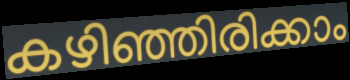
കഴിഞ്ഞിരിക്കാം